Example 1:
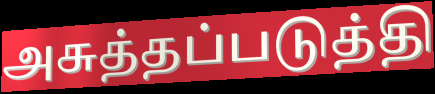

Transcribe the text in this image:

அசுத்தப்படுத்தி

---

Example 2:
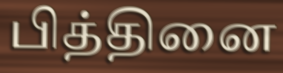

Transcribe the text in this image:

பித்தினை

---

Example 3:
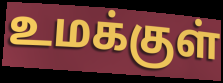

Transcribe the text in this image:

உமக்குள்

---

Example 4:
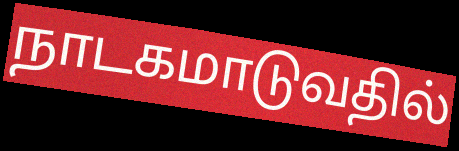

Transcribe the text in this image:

நாடகமாடுவதில்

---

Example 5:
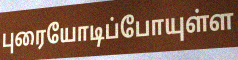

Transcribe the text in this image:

புரையோடிப்போயுள்ள